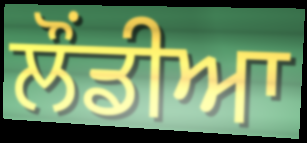
ਲੌਂਡੀਆ